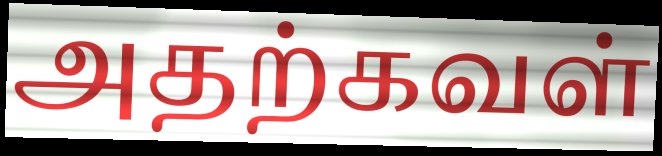
அதற்கவள்